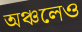
অঞ্চলেও